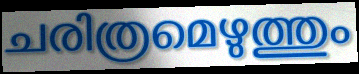
ചരിത്രമെഴുത്തും